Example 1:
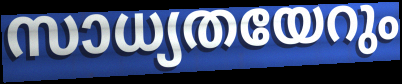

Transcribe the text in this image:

സാധ്യതയേറും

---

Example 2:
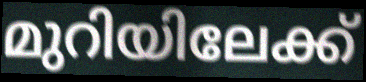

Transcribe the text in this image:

മുറിയിലേക്ക്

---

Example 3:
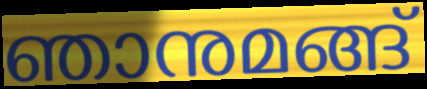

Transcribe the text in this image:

ഞാനുമങ്ങ്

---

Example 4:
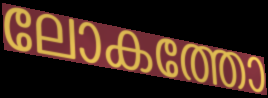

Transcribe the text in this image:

ലോകത്തോ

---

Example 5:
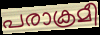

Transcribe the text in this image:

പരാക്രമീ